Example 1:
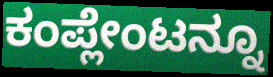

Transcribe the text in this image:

ಕಂಪ್ಲೇಂಟನ್ನೂ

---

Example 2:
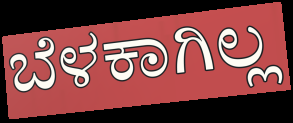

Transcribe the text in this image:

ಬೆಳಕಾಗಿಲ್ಲ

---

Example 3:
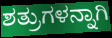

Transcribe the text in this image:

ಶತ್ರುಗಳನ್ನಾಗಿ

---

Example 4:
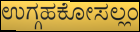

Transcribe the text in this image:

ಉಗ್ಗಹಕೋಸಲ್ಲಂ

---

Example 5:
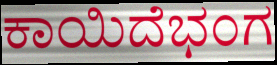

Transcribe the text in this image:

ಕಾಯಿದೆಭಂಗ